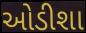
ઓડીશા